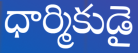
ధార్మికుడై